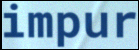
impur